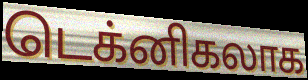
டெக்னிகலாக